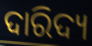
ଦାରିଦ୍ୟ